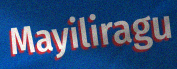
Mayiliragu